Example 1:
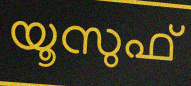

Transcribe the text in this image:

യൂസുഫ്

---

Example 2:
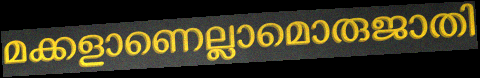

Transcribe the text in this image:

മക്കളാണെല്ലാമൊരുജാതി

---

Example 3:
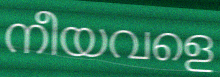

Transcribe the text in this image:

നീയവളെ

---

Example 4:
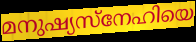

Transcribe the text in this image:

മനുഷ്യസ്നേഹിയെ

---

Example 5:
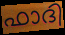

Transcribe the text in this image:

ഫാദി